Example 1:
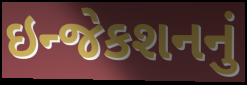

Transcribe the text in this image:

ઇન્જેકશનનું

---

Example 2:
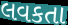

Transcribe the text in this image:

લવકતા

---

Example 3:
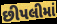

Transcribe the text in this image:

છીપલીમાં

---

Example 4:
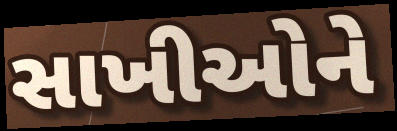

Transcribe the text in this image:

સાખીઓને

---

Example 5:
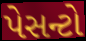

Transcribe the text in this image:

પેસન્ટો